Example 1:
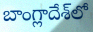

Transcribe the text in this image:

బాంగ్లాదేశ్‌లో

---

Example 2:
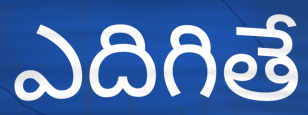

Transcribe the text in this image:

ఎదిగితే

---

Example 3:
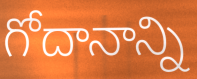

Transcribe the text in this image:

గోదానాన్ని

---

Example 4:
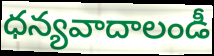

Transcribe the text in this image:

ధన్యవాదాలండీ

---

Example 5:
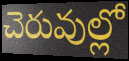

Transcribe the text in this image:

చెరువుల్లో